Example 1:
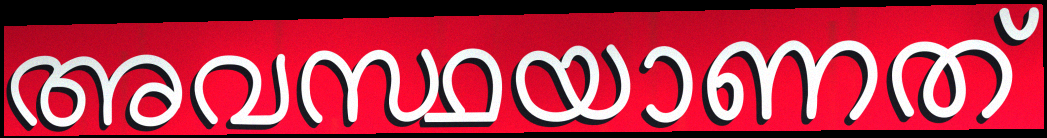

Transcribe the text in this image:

അവസ്ഥയാണത്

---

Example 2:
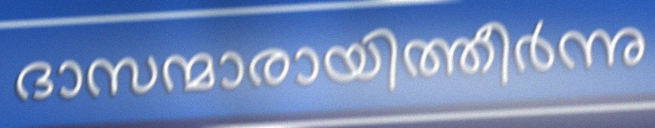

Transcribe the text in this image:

ദാസന്മാരായിത്തീർന്നു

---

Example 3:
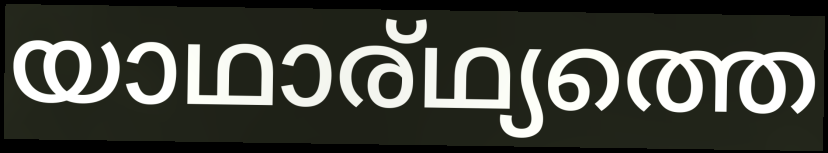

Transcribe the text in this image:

യാഥാര്ഥ്യത്തെ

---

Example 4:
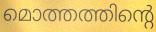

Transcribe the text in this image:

മൊത്തത്തിന്റെ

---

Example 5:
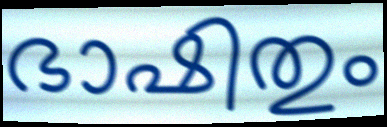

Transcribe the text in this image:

ഭാഷിതും